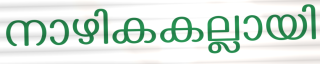
നാഴികകല്ലായി